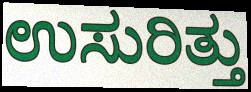
ಉಸುರಿತ್ತು